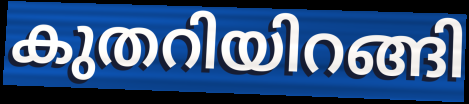
കുതറിയിറങ്ങി